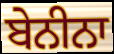
ਬੇਨੀਨਾ